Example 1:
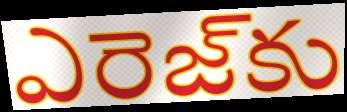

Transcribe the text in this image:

ఎరెజ్‌కు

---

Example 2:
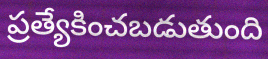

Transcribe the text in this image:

ప్రత్యేకించబడుతుంది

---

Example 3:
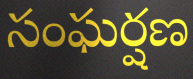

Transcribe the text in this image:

సంఘర్షణ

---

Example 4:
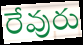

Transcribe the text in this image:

రేవురు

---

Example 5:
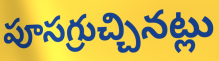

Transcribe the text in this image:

పూసగ్రుచ్చినట్లు